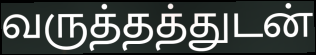
வருத்தத்துடன்